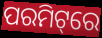
ପରମିଟ୍‌ରେ